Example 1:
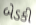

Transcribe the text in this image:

બેડકી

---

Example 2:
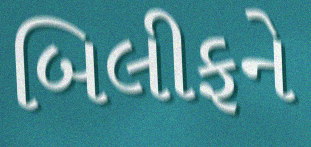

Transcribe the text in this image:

બિલીફને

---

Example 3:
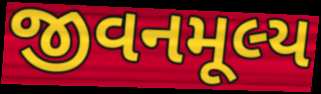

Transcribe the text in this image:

જીવનમૂલ્ય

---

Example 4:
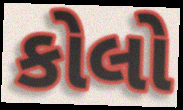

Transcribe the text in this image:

કોલો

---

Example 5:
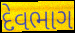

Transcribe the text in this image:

દેવભાગ